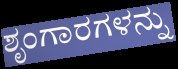
ಶೃಂಗಾರಗಳನ್ನು